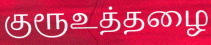
குரூஉத்தழை